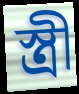
স্ত্রী